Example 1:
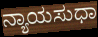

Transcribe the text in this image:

ನ್ಯಾಯಸುಧಾ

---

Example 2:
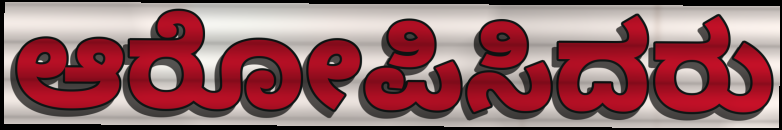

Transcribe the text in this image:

ಆರೋಪಿಸಿದರು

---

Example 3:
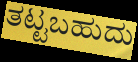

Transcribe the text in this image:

ತಟ್ಟಬಹುದು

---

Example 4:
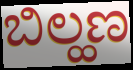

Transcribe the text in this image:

ಬಿಲ್ಹಣ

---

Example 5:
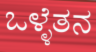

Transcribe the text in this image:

ಒಳ್ಳೆತನ